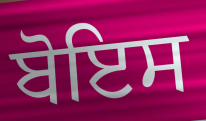
ਬੋਇਸ